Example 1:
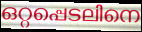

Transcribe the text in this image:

ഒറ്റപ്പെടലിനെ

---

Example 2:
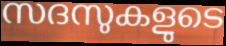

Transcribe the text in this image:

സദസുകളുടെ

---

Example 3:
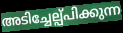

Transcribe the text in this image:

അടിച്ചേല്പ്പിക്കുന്ന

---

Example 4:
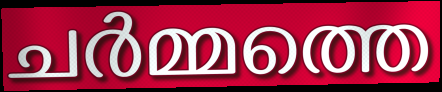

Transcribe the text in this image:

ചർമ്മത്തെ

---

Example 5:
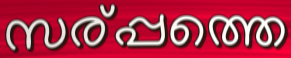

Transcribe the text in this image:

സര്പ്പത്തെ